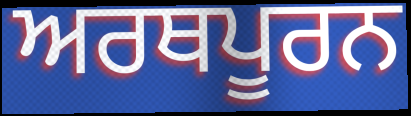
ਅਰਥਪੂਰਨ